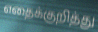
எதைக்குறித்து